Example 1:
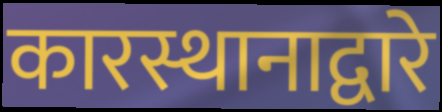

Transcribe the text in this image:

कारस्थानाद्वारे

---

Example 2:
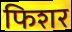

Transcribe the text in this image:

फिशर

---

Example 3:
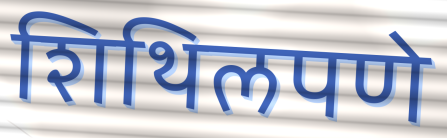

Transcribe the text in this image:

शिथिलपणे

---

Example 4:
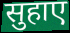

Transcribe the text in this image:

सुहाए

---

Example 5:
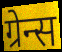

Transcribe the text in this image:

ग्रेन्स